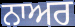
ਨਾਅਰ